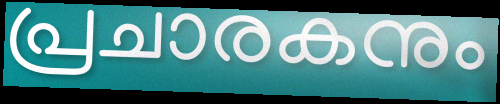
പ്രചാരകനും